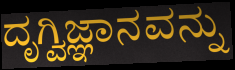
ದೃಗ್ವಿಜ್ಞಾನವನ್ನು